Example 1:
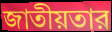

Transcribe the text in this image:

জাতীয়তার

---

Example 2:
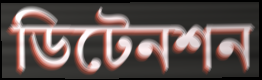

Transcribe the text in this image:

ডিটেনশন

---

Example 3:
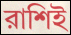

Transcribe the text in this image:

রাশিই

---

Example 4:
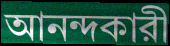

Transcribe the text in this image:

আনন্দকারী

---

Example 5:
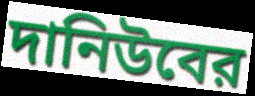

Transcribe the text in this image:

দানিউবের